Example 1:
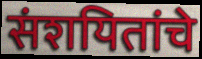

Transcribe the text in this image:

संशयितांचे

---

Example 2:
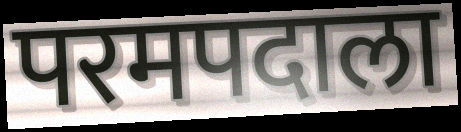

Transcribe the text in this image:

परमपदाला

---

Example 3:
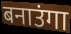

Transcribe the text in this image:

बनाउंगा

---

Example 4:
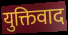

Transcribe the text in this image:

युक्तिवाद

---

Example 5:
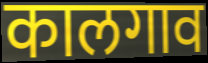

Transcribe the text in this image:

कालगाव